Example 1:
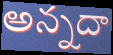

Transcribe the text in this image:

అన్నదా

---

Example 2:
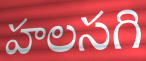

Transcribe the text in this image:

హలసగి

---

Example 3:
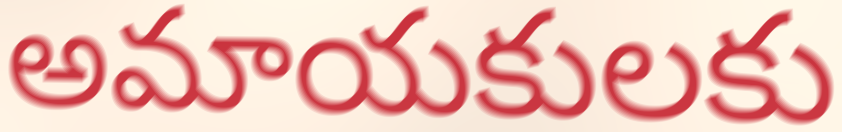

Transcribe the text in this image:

అమాయకులకు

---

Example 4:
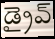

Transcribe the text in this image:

డ్రైవ్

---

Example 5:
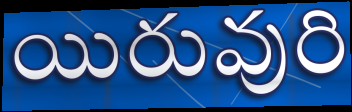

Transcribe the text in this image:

యిరువురి